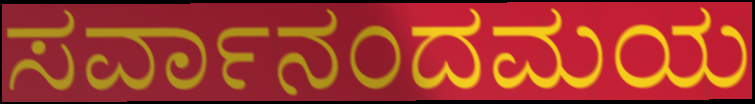
ಸರ್ವಾನಂದಮಯ